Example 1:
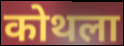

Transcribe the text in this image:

कोथला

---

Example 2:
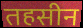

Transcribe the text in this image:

तहसीन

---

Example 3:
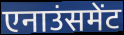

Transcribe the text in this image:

एनाउंसमेंट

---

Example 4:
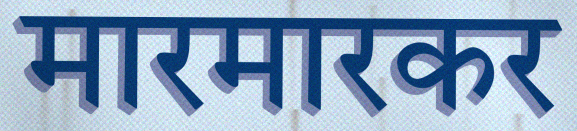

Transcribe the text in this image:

मारमारकर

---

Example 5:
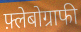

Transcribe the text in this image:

फ़्लेबोग्राफी